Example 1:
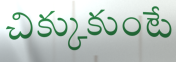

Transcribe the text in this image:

చిక్కుకుంటే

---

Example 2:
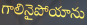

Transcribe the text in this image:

గాలినైపోయాను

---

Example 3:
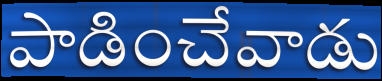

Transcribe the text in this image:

పాడించేవాడు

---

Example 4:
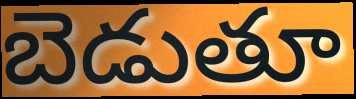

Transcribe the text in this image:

బెడుతూ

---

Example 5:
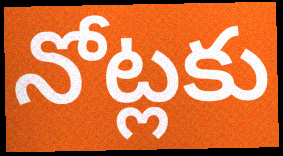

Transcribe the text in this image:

నోట్లకు